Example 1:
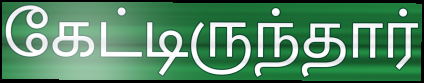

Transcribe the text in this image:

கேட்டிருந்தார்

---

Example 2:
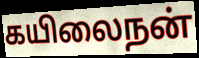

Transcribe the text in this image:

கயிலைநன்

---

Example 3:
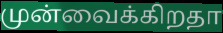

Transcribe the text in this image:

முன்வைக்கிறதா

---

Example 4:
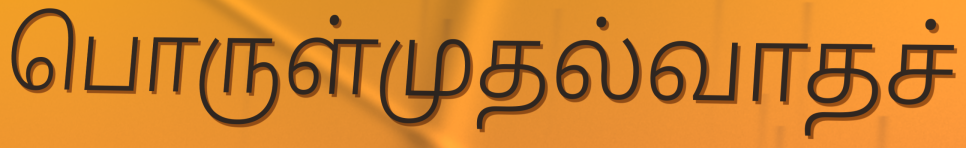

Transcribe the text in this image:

பொருள்முதல்வாதச்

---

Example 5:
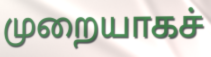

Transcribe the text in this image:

முறையாகச்